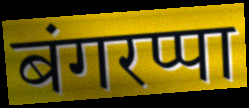
बंगरप्पा